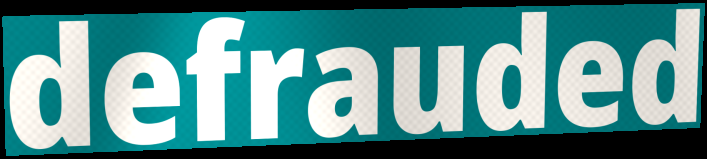
defrauded